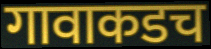
गावाकडच